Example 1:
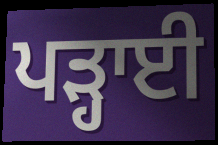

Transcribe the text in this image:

ਪੜ੍ਹਾਈ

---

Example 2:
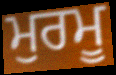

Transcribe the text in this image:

ਮੁਰਮੂ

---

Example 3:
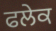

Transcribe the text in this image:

ਫਲੇਕ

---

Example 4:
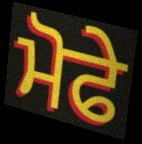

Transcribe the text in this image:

ਮੋਫੇ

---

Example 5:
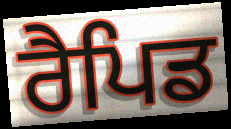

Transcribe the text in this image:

ਰੈਪਿਡ